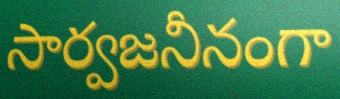
సార్వజనీనంగా